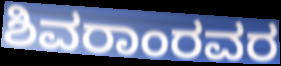
ಶಿವರಾಂರವರ